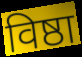
विष्ठा